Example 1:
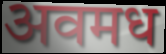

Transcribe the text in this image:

अवमध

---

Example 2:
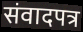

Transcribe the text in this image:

संवादपत्र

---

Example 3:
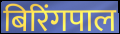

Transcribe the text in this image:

बिरिंगपाल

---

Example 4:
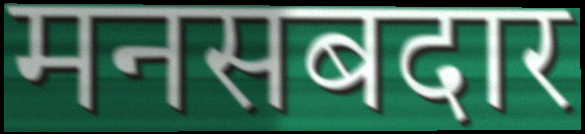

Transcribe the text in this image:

मनसबदार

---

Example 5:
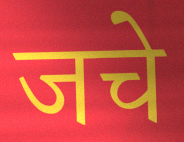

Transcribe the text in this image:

जचे